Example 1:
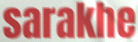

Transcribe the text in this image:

sarakhe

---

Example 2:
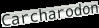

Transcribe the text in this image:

Carcharodon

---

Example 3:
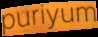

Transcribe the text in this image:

puriyum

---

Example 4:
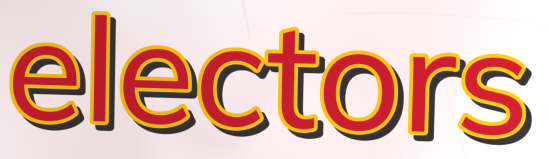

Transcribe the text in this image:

electors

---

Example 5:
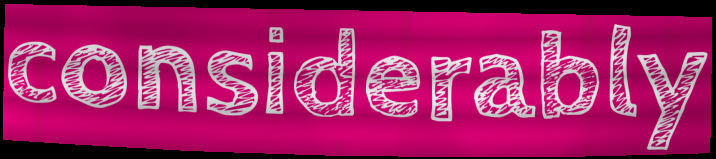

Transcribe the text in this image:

considerably